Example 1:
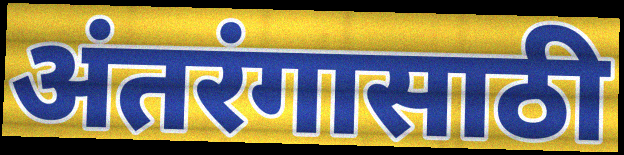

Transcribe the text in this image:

अंतरंगासाठी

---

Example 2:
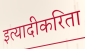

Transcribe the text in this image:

इत्यादीकरिता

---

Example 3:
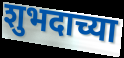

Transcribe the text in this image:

शुभदाच्या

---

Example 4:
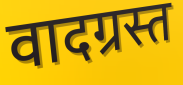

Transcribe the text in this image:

वादग्रस्त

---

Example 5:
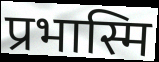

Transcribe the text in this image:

प्रभास्मि